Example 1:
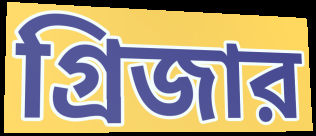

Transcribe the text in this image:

গ্রিজার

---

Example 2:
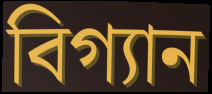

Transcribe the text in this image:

বিগ্যান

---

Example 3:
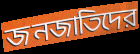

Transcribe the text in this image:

জনজাতিদের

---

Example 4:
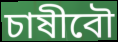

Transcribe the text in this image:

চাষীবৌ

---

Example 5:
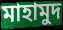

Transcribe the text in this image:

মাহামুদ